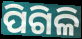
ପିଗିଳି